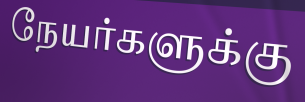
நேயர்களுக்கு